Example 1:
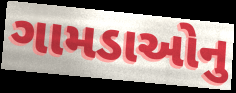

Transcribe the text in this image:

ગામડાઓનુ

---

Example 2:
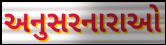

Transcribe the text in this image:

અનુસરનારાઓ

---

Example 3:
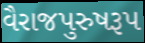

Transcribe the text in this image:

વૈરાજપુરુષરૂપ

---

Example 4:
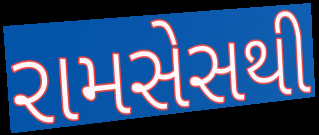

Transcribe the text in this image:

રામસેસથી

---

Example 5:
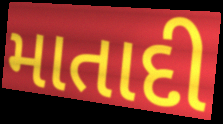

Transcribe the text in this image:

માતાદી